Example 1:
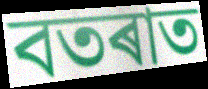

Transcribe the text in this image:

বতৰাত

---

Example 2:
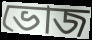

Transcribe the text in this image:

ভোজ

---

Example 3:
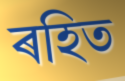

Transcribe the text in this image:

ৰহিত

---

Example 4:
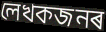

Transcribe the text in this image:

লেখকজনৰ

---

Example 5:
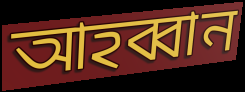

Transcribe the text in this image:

আহব্বান